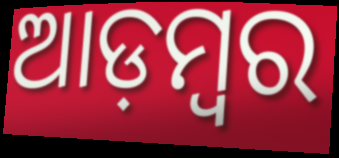
ଆଡ଼ମ୍ୱର